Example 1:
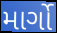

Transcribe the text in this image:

માર્ગો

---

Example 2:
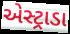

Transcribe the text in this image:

એસ્ટ્રાડા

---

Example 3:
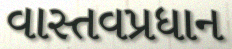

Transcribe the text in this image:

વાસ્તવપ્રધાન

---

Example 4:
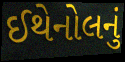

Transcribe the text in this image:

ઈથેનોલનું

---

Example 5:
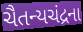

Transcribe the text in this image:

ચૈતન્યચંદ્રના